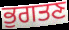
ਭੁਗਤਣ